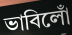
ভাবিলোঁ